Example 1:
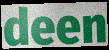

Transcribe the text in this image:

deen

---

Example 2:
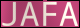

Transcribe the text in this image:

JAFA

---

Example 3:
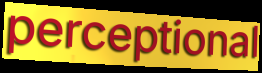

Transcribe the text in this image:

perceptional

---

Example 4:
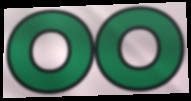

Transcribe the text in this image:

OO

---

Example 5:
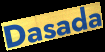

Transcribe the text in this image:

Dasada